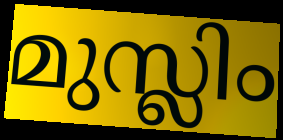
മുസ്ലിം